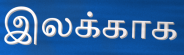
இலக்காக